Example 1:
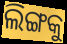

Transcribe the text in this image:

ଲିଙ୍ଗକୁ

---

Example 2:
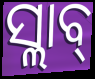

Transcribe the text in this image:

ସ୍ଲାବ୍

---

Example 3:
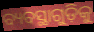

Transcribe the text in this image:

ବ୍ୟବସ୍ଥାଗୁଡ଼ିକୁ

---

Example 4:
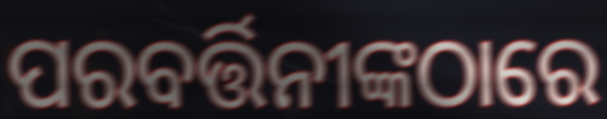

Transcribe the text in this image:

ପରବର୍ତ୍ତିନୀଙ୍କଠାରେ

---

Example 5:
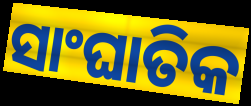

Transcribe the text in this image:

ସାଂଘାତିକ